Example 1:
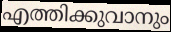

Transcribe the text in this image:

എത്തിക്കുവാനും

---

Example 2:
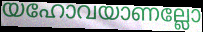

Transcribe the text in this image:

യഹോവയാണല്ലോ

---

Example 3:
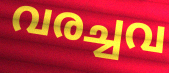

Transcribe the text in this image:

വരച്ചവ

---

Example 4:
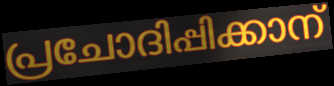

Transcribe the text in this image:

പ്രചോദിപ്പിക്കാന്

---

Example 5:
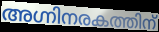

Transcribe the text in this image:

അഗ്നിനരകത്തിന്